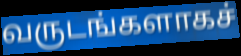
வருடங்களாகச்